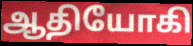
ஆதியோகி